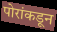
पोरांकडून